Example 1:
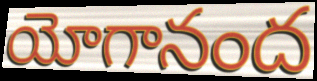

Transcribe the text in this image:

యోగానంద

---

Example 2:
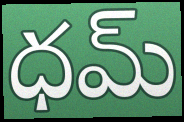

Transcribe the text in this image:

ధమ్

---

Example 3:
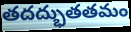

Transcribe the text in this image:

తదద్భుతతమం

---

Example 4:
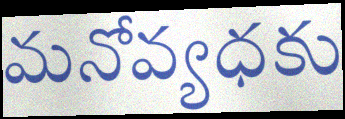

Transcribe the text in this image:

మనోవ్యధకు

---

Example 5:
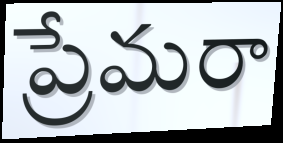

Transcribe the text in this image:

ప్రేమరా